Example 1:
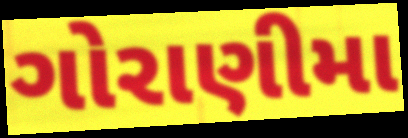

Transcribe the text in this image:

ગોરાણીમા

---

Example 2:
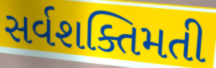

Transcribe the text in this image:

સર્વશક્તિમતી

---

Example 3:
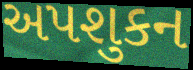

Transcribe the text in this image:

અપશુકન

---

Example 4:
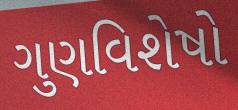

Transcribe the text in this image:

ગુણવિશેષો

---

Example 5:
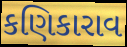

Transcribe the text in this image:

કણિકારાવ